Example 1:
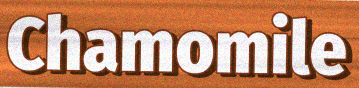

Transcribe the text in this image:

Chamomile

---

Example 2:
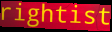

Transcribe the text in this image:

rightist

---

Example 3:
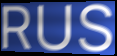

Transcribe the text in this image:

RUS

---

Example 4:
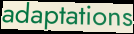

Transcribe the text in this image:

adaptations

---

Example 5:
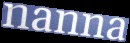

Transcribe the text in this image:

nanna